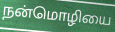
நன்மொழியை